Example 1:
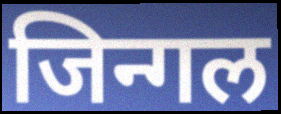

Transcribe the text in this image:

जिन्गल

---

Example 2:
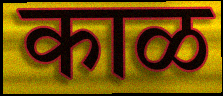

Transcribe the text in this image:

काळ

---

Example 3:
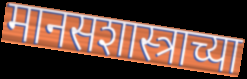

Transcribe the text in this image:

मानसशास्त्राच्या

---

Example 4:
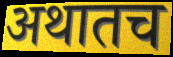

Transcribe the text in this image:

अथातच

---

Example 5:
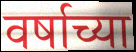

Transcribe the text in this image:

वर्षाच्या